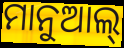
ମାନୁଆଲ୍